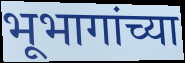
भूभागांच्या